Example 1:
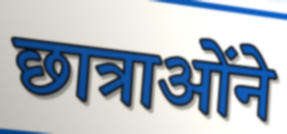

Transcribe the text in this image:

छात्राओंने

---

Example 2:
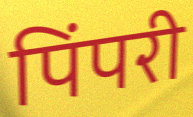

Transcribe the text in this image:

पिंपरी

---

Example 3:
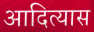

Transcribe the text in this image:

आदित्यास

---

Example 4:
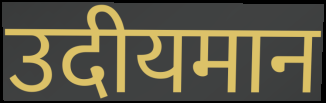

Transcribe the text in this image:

उदीयमान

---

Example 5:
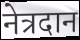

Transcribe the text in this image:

नेत्रदान